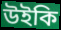
উইকি